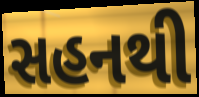
સહનથી